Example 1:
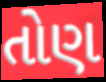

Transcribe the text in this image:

તોણ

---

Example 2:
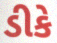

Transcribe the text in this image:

ડીકે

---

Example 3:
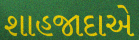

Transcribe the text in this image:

શાહજાદાએ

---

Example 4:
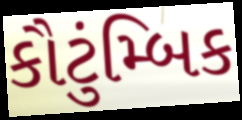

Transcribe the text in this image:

કૌટુંમ્બિક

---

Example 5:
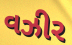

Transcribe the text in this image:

વઝીર